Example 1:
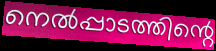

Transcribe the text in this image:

നെൽപ്പാടത്തിന്റെ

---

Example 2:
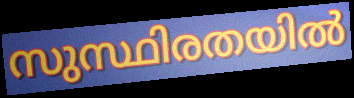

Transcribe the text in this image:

സുസ്ഥിരതയിൽ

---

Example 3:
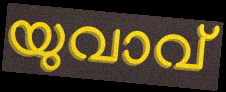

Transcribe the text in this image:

യുവാവ്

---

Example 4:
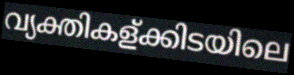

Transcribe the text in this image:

വ്യക്തികള്ക്കിടയിലെ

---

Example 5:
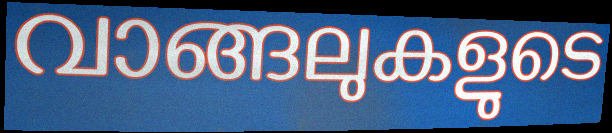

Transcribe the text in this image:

വാങ്ങലുകളുടെ